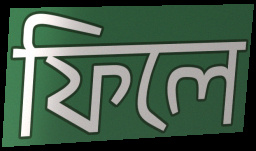
ফিলে